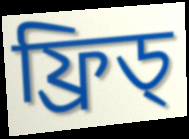
ফ্ৰিড্